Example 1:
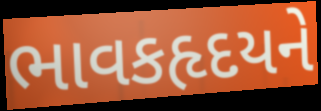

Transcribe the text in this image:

ભાવકહૃદયને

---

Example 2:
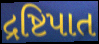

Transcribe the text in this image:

દ્રષ્ટિપાત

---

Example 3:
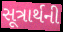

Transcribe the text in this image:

સૂત્રાર્થની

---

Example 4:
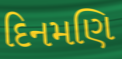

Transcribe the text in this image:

દિનમણિ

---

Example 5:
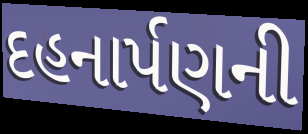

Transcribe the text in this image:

દહનાર્પણની